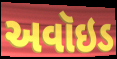
અવૉઇડ